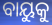
ବାୟୁକୁ